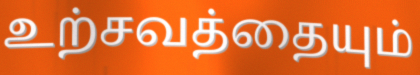
உற்சவத்தையும்